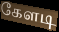
கேளடி